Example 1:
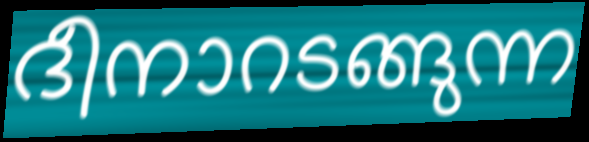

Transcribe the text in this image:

ദീനാറടങ്ങുന്ന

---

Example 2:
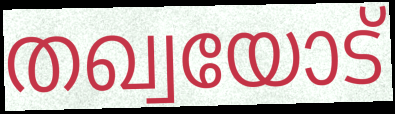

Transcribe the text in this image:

തഖ്വയോട്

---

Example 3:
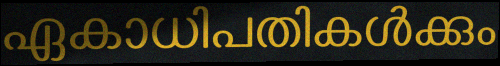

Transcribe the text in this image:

ഏകാധിപതികൾക്കും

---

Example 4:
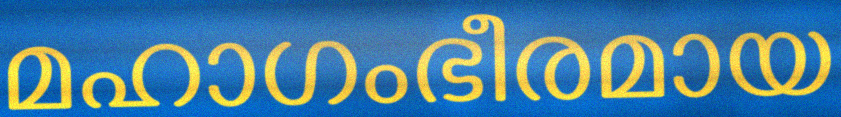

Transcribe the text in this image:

മഹാഗംഭീരമായ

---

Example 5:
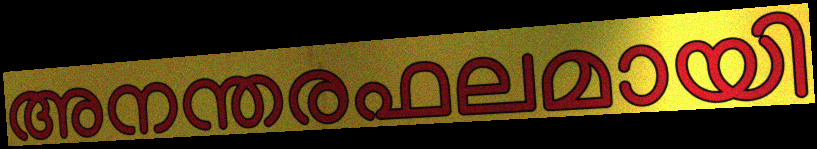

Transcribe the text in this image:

അനന്തരഫലമായി